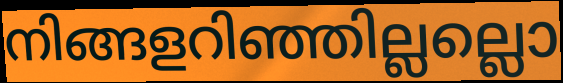
നിങ്ങളറിഞ്ഞില്ലല്ലൊ